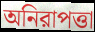
অনিরাপত্তা